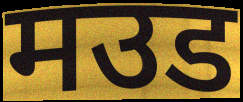
मउड